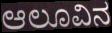
ಆಲೂವಿನ